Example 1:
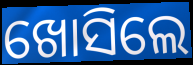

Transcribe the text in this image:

ଖୋସିଲେ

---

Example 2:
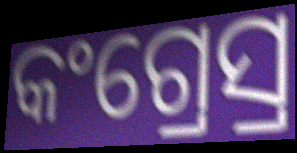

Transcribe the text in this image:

କଂଗ୍ରେସ୍ର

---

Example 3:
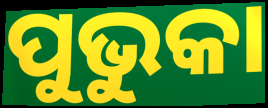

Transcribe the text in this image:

ପୁଭୁକା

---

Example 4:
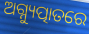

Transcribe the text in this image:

ଅଗ୍ନ୍ୟୁତ୍ପାତରେ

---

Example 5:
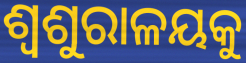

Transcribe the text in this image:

ଶ୍ୱଶୁରାଳୟକୁ